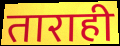
ताराही